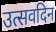
उत्सवदिन